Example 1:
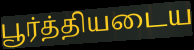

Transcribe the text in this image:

பூர்த்தியடைய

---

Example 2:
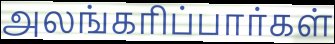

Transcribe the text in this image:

அலங்கரிப்பார்கள்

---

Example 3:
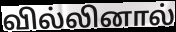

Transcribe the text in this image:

வில்லினால்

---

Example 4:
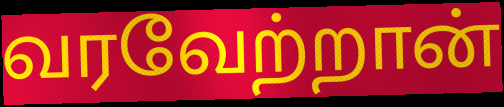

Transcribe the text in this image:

வரவேற்றான்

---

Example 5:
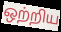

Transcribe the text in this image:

ஒற்றிய